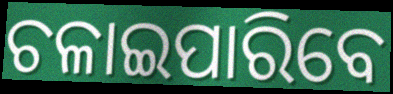
ଚଳାଇପାରିବେ